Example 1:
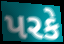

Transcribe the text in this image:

પરકે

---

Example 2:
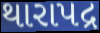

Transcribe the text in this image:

થારાપદ્ર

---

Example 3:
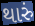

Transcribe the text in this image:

થારું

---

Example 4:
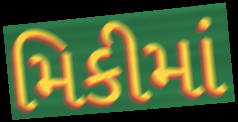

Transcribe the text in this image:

મિકીમાં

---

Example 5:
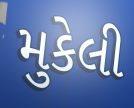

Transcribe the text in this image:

મુકેલી